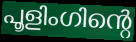
പൂളിംഗിന്റെ